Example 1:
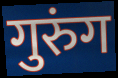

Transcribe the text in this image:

गुरुंग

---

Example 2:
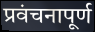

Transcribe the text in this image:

प्रवंचनापूर्ण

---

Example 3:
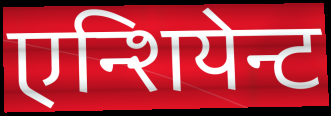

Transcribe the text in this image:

एन्शियेन्ट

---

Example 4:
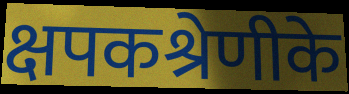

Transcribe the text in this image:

क्षपकश्रेणीके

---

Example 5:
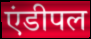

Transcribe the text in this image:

एंडीपल